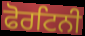
ਫੋਰਟਿਨੀ